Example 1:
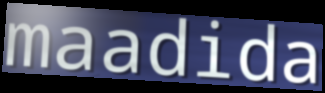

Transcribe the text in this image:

maadida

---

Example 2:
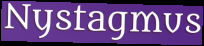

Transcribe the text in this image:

Nystagmus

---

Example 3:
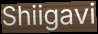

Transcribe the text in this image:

Shiigavi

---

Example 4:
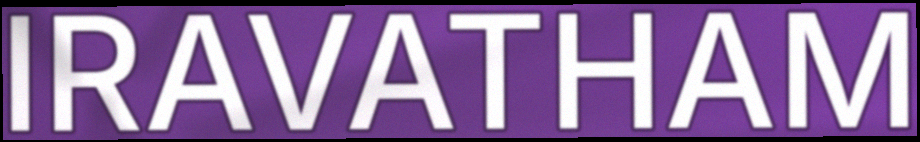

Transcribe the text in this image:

IRAVATHAM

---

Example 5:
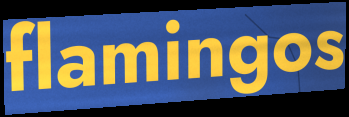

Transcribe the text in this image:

flamingos